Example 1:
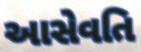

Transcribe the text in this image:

આસેવતિ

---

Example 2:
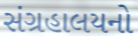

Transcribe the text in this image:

સંગ્રહાલયનો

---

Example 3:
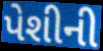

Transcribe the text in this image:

પેશીની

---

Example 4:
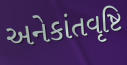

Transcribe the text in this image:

અનેકાંતવૃષ્ટિ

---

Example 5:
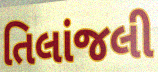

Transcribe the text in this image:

તિલાંજલી